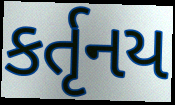
કર્તૃનય